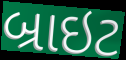
બ્રાઇટ